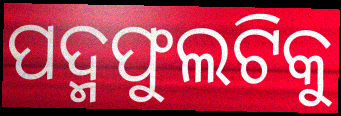
ପଦ୍ମଫୁଲଟିକୁ